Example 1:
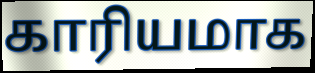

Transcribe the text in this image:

காரியமாக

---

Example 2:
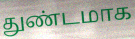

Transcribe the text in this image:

துண்டமாக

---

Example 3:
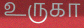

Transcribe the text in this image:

உருகா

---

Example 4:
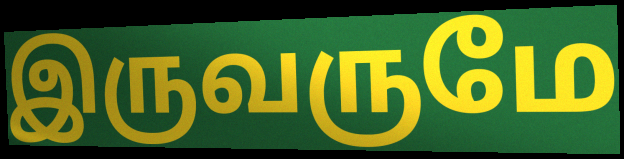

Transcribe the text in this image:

இருவருமே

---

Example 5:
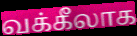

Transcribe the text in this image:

வக்கீலாக